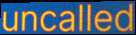
uncalled